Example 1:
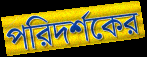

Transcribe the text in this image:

পরিদর্শকের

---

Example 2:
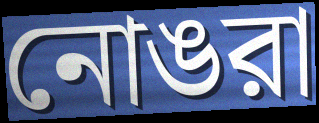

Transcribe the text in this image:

নোঙরা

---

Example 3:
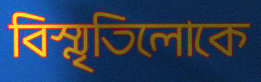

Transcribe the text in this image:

বিস্মৃতিলোকে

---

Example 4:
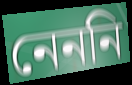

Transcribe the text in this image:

নেননি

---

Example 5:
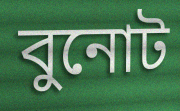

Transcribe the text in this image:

বুনোট